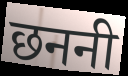
छननी